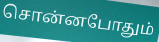
சொன்னபோதும்